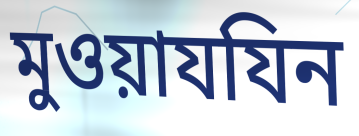
মুওয়াযযিন